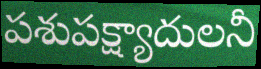
పశుపక్ష్యాదులనీ